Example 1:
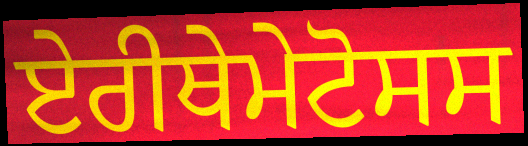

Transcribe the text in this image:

ਏਰੀਥੇਮੇਟੋਸਸ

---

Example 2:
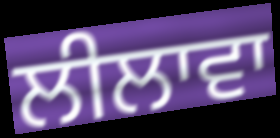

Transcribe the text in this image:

ਲੀਲਾਵਾ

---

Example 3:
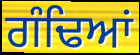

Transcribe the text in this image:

ਗੰਢਿਆਂ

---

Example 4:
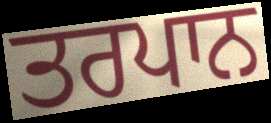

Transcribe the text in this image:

ਤਰਪਾਨ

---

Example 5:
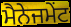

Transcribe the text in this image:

ਮੈਨੇਜਮੇੰਟ